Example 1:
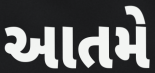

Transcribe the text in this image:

આતમે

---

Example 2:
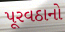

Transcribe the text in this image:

પૂરવઠાનો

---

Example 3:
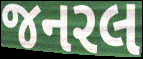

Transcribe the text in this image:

જનરલ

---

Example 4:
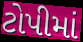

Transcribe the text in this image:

ટોપીમાં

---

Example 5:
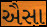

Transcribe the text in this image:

ઐસા